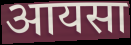
आयसा